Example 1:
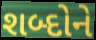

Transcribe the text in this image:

શબ્દોને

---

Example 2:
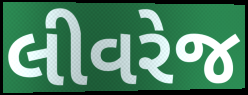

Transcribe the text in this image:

લીવરેજ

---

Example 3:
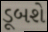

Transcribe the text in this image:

ડૂબશે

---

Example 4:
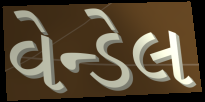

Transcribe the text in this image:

વેન્ડેલ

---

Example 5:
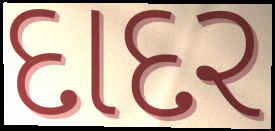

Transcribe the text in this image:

દાદર